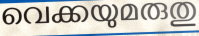
വെക്കയുമരുതു